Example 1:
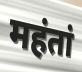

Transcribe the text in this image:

महंतां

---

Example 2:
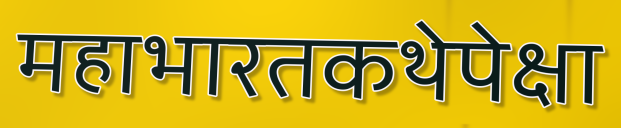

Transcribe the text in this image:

महाभारतकथेपेक्षा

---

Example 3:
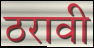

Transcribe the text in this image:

ठरावी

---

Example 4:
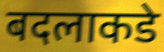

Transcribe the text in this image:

बदलाकडे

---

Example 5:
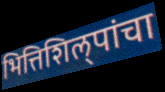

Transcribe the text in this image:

भित्तिशिल्पांचा